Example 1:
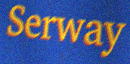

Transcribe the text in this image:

Serway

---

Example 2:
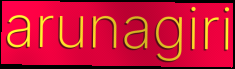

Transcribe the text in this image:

arunagiri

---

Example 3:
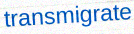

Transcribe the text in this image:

transmigrate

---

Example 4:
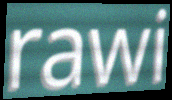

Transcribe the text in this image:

rawi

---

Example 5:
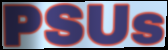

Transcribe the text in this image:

PSUs